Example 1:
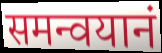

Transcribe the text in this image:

समन्वयानं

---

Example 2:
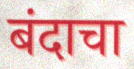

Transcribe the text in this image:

बंदाचा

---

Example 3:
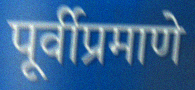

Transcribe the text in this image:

पूर्वीप्रमाणे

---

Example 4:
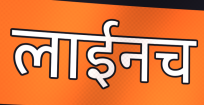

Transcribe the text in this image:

लाईनच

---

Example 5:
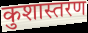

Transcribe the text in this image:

कुशास्तरण